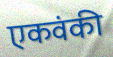
एकवंकी